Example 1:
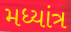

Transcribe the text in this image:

મધ્યાંત્ર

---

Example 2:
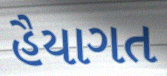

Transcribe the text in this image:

હૈયાગત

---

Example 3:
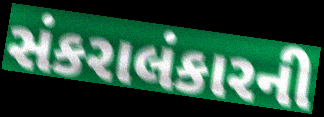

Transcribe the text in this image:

સંકરાલંકારની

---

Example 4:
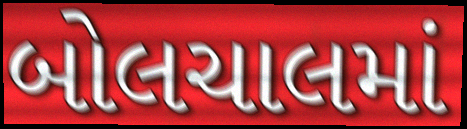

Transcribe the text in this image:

બોલચાલમાં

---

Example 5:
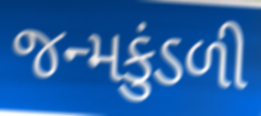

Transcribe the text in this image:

જન્મકુંડળી